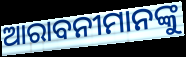
ଆରାବନୀମାନଙ୍କୁ